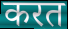
करत